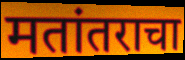
मतांतराचा